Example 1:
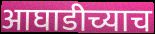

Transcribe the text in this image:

आघाडीच्याच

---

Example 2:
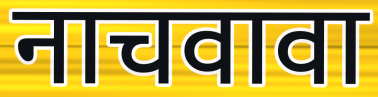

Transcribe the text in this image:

नाचवावा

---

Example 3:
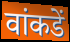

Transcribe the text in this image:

वांकडें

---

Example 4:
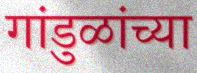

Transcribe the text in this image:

गांडुळांच्या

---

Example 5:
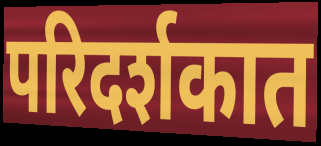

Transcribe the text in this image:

परिदर्शकात